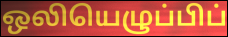
ஒலியெழுப்பிப்